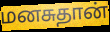
மனசுதான்